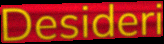
Desideri